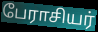
பேராசியர்